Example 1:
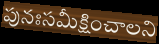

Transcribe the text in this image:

పునఃసమీక్షించాలని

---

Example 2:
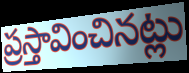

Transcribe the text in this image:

ప్రస్తావించినట్లు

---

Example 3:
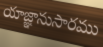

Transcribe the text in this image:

యాజ్ఞానుసారము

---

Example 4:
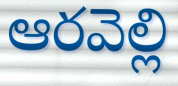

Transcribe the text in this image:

ఆరవెల్లి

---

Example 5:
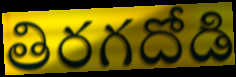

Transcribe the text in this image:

తిరగదోడి